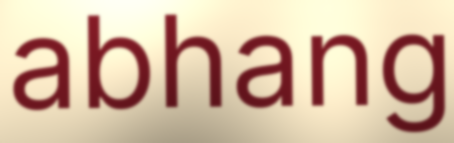
abhang